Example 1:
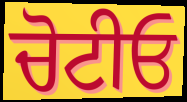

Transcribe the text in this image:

ਚੋਟੀਓ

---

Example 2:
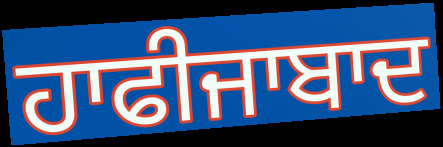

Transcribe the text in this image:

ਹਾਫੀਜਾਬਾਦ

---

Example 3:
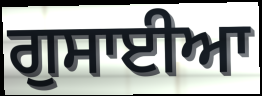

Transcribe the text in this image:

ਗੁਸਾਈਆ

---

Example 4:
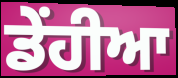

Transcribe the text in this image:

ਡੇਂਹੀਆ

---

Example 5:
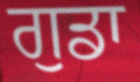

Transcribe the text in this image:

ਗੁਡਾ